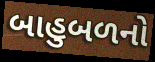
બાહુબળનો